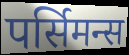
पर्सिमन्स